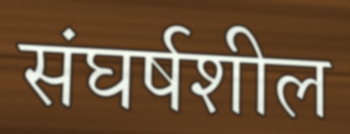
संघर्षशील